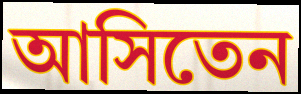
আসিতেন